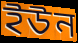
ইউন